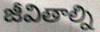
జీవితాల్ని